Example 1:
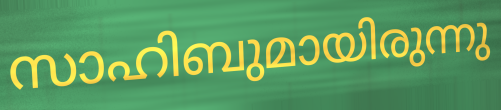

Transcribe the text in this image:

സാഹിബുമായിരുന്നു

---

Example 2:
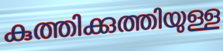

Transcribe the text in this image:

കുത്തിക്കുത്തിയുള്ള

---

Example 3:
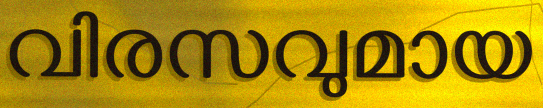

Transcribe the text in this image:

വിരസവുമായ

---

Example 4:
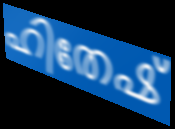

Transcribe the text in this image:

ഹിതേഷ്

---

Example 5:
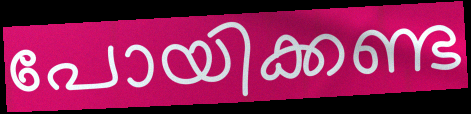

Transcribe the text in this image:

പോയിക്കണ്ട